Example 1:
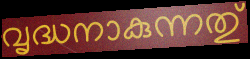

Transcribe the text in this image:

വൃദ്ധനാകുന്നതു്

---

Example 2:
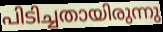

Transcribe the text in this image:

പിടിച്ചതായിരുന്നു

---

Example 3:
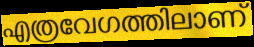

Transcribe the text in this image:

എത്രവേഗത്തിലാണ്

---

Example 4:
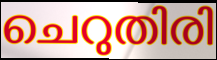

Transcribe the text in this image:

ചെറുതിരി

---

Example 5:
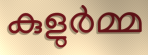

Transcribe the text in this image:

കുളുർമ്മ